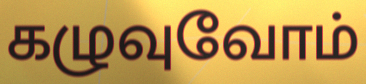
கழுவுவோம்